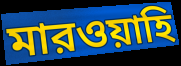
মারওয়াহি